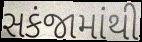
સકંજામાંથી